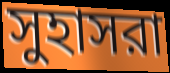
সুহাসরা